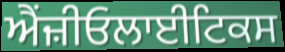
ਐਂਜ਼ੀਓਲਾਈਟਿਕਸ